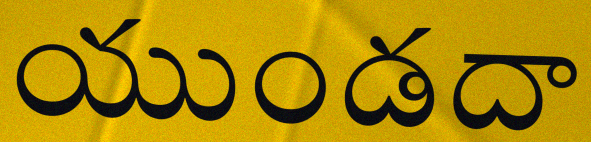
యుండదా